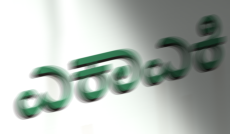
ಎಕಾಎಕಿ